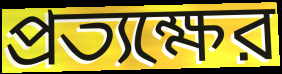
প্রত্যক্ষের